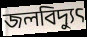
জলবিদ্যুৎ